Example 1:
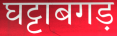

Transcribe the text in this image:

घट्टाबगड़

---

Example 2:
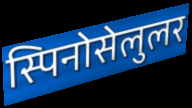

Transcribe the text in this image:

स्पिनोसेलुलर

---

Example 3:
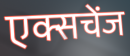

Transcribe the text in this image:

एक्सचेंज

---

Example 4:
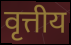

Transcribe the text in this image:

वृत्तीय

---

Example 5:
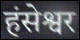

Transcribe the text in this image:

हंसेश्वर